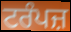
ਟਰੰਪਜ਼